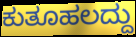
ಕುತೂಹಲದ್ದು